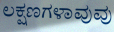
ಲಕ್ಷಣಗಳಾವುವು